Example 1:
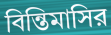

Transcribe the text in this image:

বিন্তিমাসির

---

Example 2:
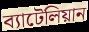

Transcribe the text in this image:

ব্যাটেলিয়ান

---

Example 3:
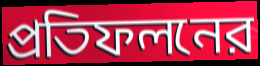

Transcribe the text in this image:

প্রতিফলনের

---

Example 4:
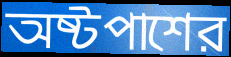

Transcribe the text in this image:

অষ্টপাশের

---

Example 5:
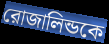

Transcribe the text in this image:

রোজালিন্ডকে